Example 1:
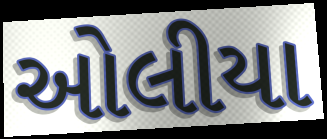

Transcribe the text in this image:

ઓલીયા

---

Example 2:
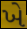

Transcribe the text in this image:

ખે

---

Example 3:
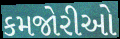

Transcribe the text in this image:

કમજોરીઓ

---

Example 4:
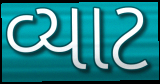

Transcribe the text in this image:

વ્યાટ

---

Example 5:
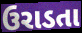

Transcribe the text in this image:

ઉરાડતા